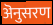
ऄनुसरण